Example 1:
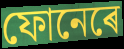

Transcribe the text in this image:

ফোনেৰে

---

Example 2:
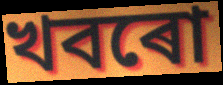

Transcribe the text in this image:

খবৰো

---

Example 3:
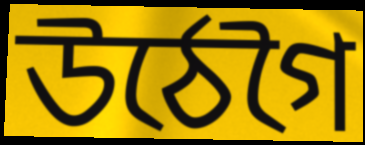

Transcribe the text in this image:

উঠেগৈ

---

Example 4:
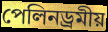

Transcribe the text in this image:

পেলিনড্ৰমীয়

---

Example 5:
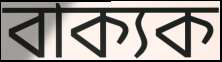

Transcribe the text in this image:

বাক্যক